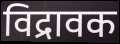
विद्रावक